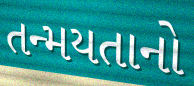
તન્મયતાનો